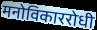
मनोविकाररोधी